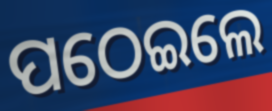
ପଠେଇଲେ